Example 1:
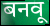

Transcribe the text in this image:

बनवू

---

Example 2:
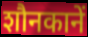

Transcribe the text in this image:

शौनकानें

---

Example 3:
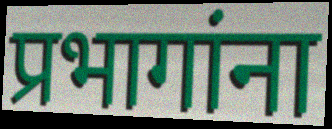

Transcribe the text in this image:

प्रभागांना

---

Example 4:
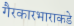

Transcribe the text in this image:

गैरकारभाराकडे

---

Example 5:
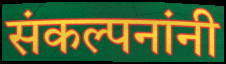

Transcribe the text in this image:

संकल्पनांनी